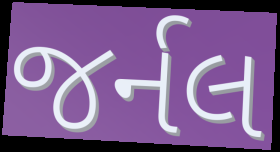
જર્નલ